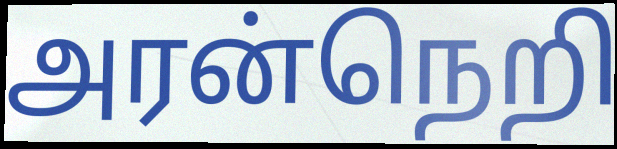
அரன்நெறி